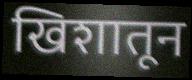
खिशातून